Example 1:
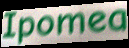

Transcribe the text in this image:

Ipomea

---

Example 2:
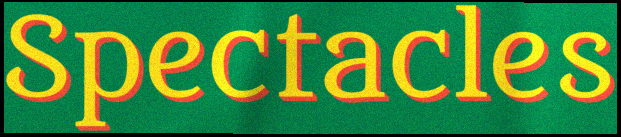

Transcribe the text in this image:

Spectacles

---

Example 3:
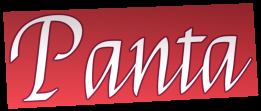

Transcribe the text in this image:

Panta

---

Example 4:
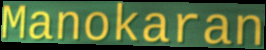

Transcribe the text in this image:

Manokaran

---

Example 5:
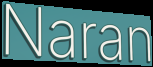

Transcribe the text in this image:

Naran